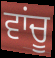
ਵਾਂਚੂ